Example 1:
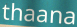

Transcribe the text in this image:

thaana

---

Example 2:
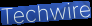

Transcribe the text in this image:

Techwire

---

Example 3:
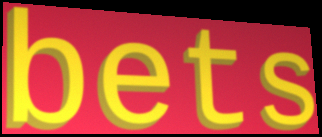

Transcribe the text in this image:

bets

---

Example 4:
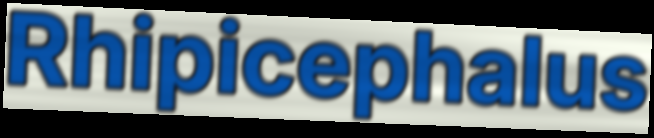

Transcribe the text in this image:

Rhipicephalus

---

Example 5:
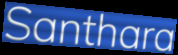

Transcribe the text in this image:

Santhara